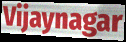
Vijaynagar